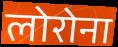
लोरोना